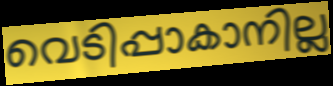
വെടിപ്പാകാനില്ല